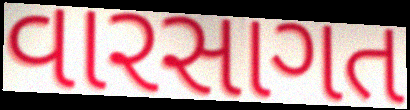
વારસાગત